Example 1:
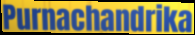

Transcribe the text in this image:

Purnachandrika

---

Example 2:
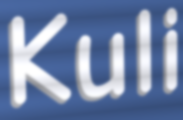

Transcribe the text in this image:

Kuli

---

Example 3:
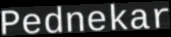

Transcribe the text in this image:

Pednekar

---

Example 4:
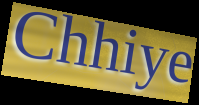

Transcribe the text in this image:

Chhiye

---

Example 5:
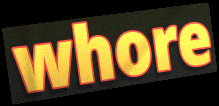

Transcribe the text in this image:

whore